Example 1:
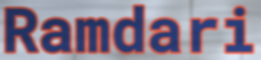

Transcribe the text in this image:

Ramdari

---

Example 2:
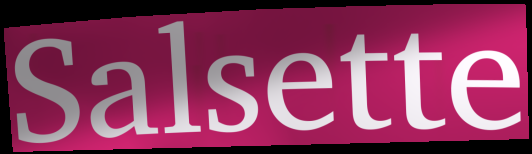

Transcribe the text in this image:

Salsette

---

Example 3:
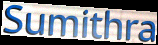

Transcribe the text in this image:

Sumithra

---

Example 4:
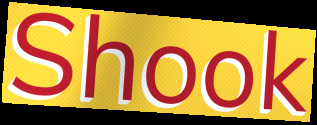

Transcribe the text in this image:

Shook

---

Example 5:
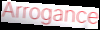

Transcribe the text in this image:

Arrogance